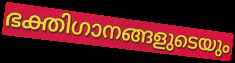
ഭക്തിഗാനങ്ങളുടെയും